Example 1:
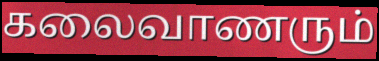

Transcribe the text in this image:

கலைவாணரும்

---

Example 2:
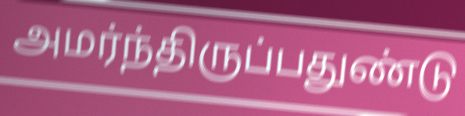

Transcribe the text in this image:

அமர்ந்திருப்பதுண்டு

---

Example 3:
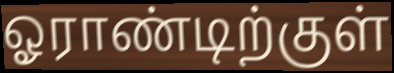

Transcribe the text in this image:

ஓராண்டிற்குள்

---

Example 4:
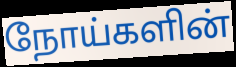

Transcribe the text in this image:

நோய்களின்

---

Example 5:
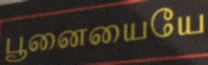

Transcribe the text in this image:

பூனையையே